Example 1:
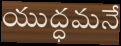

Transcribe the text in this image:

యుద్ధమనే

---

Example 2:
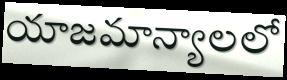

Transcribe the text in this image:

యాజమాన్యాలలో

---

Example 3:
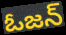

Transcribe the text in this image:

ఓజన్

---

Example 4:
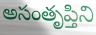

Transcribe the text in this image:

అసంతృప్తిని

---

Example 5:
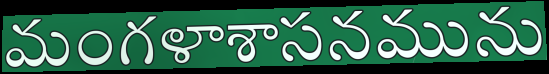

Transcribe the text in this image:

మంగళాశాసనమును